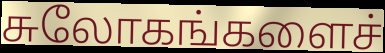
சுலோகங்களைச்